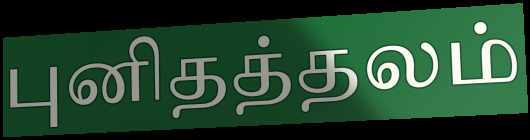
புனிதத்தலம்